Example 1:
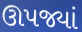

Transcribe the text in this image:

ઊપજ્યાં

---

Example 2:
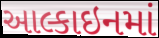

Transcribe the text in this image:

આલ્કાઇનમાં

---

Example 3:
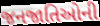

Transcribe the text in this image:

જનજાતિઓની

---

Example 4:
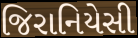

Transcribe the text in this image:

જિરાનિયેસી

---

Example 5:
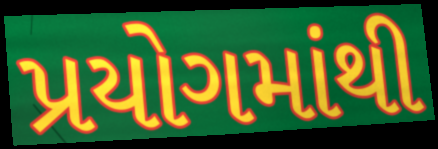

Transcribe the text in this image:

પ્રયોગમાંથી